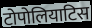
टोपोलियाटिस